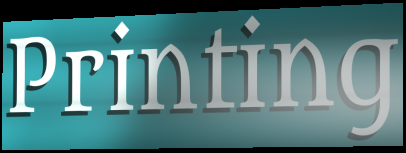
Printing